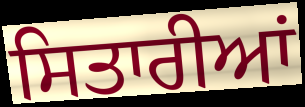
ਸਿਤਾਰੀਆਂ